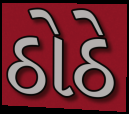
ઠોઠે